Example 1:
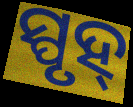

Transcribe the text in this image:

ସ୍ପୃହ୍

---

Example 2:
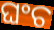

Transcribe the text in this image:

ଘଂଚ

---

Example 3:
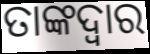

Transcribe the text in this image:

ତାଙ୍କଦ୍ୱାର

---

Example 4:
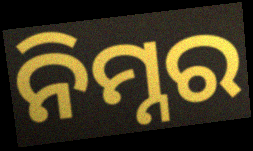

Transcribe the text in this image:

ନିମ୍ନର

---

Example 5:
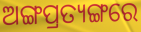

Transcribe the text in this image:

ଅଙ୍ଗପ୍ରତ୍ୟଙ୍ଗରେ